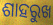
ଶାହରୁଖ